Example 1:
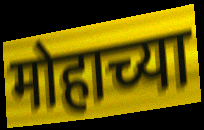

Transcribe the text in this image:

मोहाच्या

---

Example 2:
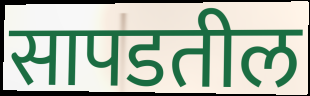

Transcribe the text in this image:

सापडतील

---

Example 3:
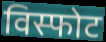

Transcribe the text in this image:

विस्फोट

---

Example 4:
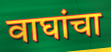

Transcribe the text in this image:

वाघांचा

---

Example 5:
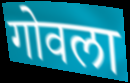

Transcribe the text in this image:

गोवला